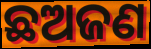
ଛଅଜଣ